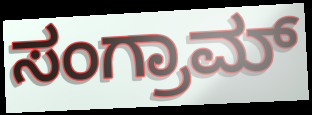
ಸಂಗ್ರಾಮ್